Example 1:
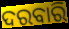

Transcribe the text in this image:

ଦରବାରି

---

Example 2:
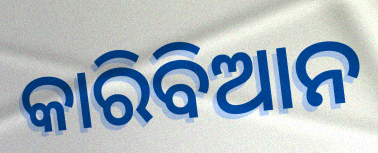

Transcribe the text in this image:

କାରିବିଆନ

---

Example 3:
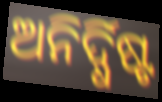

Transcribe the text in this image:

ଅନିର୍ଦ୍ଧିଷ୍ଟ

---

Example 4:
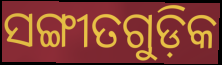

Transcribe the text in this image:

ସଙ୍ଗୀତଗୁଡ଼ିକ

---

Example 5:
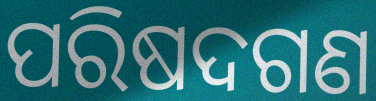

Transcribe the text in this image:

ପରିଷଦଗଣ